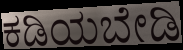
ಕಡಿಯಬೇಡಿ